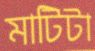
মাটিটা